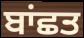
ਬਾਂਛਤ